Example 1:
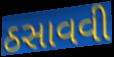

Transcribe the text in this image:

ઠસાવવી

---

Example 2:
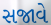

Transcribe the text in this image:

સજાવે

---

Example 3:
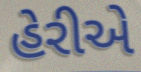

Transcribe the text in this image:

હેરીએ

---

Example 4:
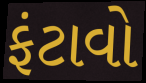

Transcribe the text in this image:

ફંટાવો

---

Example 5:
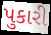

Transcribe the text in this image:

પુકારી